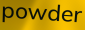
powder